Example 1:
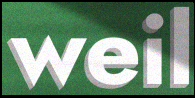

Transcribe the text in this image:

weil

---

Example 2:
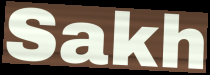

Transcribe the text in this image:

Sakh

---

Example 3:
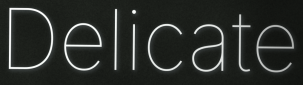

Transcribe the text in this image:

Delicate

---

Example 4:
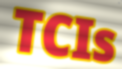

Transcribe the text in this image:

TCIs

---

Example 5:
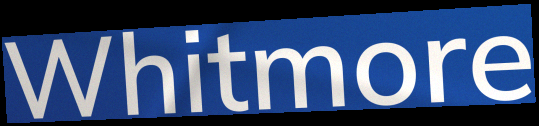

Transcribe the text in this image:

Whitmore